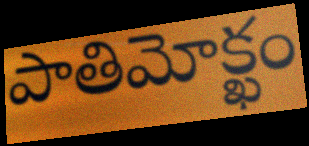
పాతిమోక్ఖం